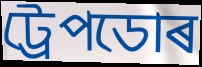
ট্ৰেপডোৰ